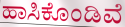
ಹಾಸಿಕೊಂಡಿವೆ